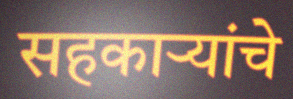
सहकार्‍यांचे